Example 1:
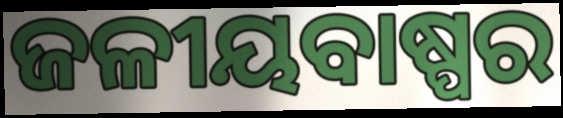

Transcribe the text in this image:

ଜଳୀୟବାଷ୍ପର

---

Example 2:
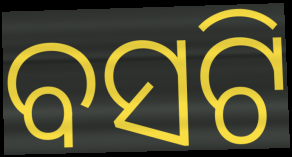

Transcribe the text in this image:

ବସଟି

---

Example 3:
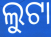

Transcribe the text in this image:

ଲୁଟା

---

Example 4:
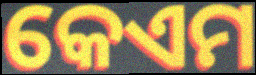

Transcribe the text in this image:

କେଏମ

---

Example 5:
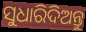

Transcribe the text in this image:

ସୁଧାରିଦିଅନ୍ତୁ